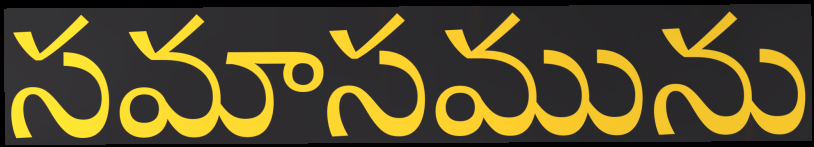
సమాసమును